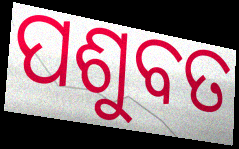
ପଶୁବତ